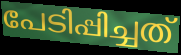
പേടിപ്പിച്ചത്